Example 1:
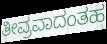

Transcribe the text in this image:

ತೀವ್ರವಾದಂತಹ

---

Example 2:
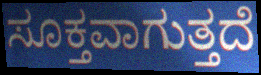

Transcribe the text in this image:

ಸೂಕ್ತವಾಗುತ್ತದೆ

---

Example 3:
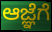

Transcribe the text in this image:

ಆಜ್ಞೆಗೆ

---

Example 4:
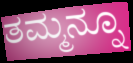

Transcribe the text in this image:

ತಮ್ಮನ್ನೂ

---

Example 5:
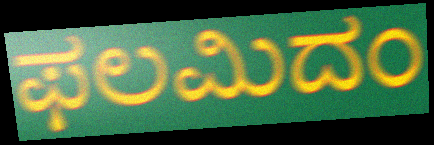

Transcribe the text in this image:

ಫಲಮಿದಂ